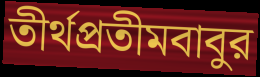
তীর্থপ্রতীমবাবুর